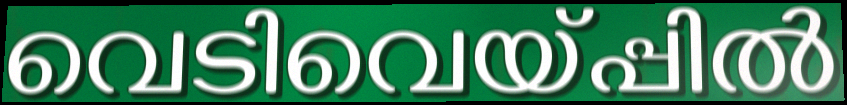
വെടിവെയ്പ്പിൽ